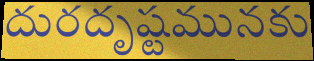
దురదృష్టమునకు